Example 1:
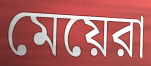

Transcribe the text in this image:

মেয়েরা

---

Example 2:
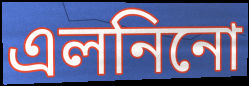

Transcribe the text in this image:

এলনিনো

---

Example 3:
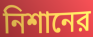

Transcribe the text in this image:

নিশানের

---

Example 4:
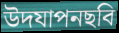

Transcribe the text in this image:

উদযাপনছবি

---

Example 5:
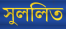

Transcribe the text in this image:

সুললিত